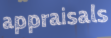
appraisals